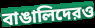
বাঙালিদেরও